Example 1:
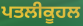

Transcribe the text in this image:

ਪਤਲੀਕੂਹਲ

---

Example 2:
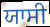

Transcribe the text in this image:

ਯਾਸੀ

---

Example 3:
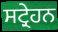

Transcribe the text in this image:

ਸਟ੍ਰੇਹਨ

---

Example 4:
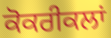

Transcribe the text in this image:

ਕੋਕਰੀਕਲਾਂ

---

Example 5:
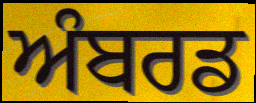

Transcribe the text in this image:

ਅੰਬਰਡ